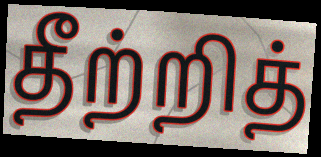
தீற்றித்